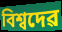
বিশ্বদেৱ